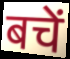
बचें